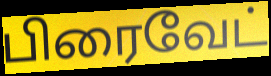
பிரைவேட்